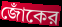
জোঁকের